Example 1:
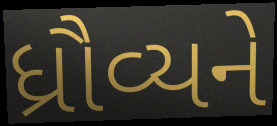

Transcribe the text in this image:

ધ્રૌવ્યને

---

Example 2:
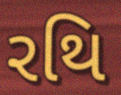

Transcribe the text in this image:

રથિ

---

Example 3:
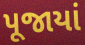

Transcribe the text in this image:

પૂજાયાં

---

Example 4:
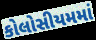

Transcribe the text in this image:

કોલોસીયમમાં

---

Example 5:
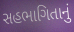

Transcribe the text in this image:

સહભાગિતાનું